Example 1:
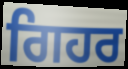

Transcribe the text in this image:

ਗਿਹਰ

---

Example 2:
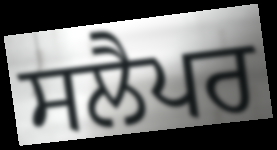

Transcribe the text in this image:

ਸਲੈਪਰ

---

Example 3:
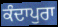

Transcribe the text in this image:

ਕੰਦਾਪੁਰਾ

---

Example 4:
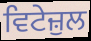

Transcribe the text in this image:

ਵਿਟੇਜ਼ੁਲ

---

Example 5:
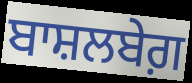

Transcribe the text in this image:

ਬਾਸ਼ਲਬੇਗ਼